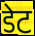
डेट